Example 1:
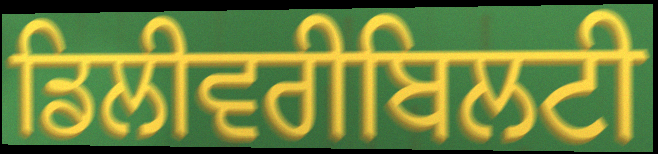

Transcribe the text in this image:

ਡਿਲੀਵਰੀਬਿਲਟੀ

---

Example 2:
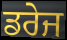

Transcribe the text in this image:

ਡਰੇਜ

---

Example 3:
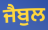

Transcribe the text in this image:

ਜੈਬੁਲ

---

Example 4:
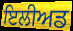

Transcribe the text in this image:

ਇਲੀਅਡ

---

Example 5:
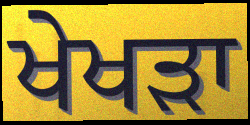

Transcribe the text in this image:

ਖੇਖੜਾ